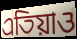
এতিয়াও